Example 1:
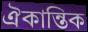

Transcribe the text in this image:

ঐকান্তিক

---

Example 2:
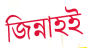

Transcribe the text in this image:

জিন্নাহই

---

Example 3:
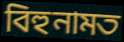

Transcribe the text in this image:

বিহুনামত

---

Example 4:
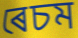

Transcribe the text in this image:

ৰেচম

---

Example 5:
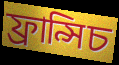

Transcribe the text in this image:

ফ্ৰান্সিচ